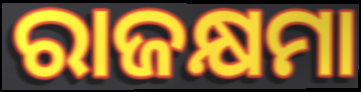
ରାଜକ୍ଷମା